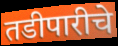
तडीपारीचे